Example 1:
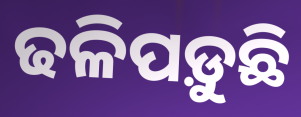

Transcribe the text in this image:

ଢଳିପଡ଼ୁଛି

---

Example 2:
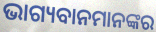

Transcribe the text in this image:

ଭାଗ୍ୟବାନମାନଙ୍କର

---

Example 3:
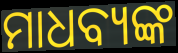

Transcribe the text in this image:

ମାଧବ୍ୟଙ୍କ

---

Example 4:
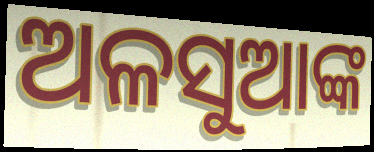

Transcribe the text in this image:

ଅଳସୁଆଙ୍କ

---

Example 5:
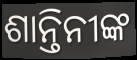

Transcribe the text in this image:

ଶାନ୍ତିନୀଙ୍କ